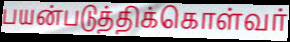
பயன்படுத்திக்கொள்வர்